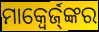
ମାକ୍ୱେର୍ଜ୍‌ଙ୍କର